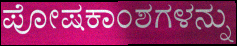
ಪೋಷಕಾಂಶಗಳನ್ನು